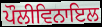
ਪੌਲੀਵਿਨਾਇਲ